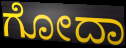
ಗೋದಾ